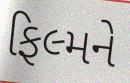
ફિલ્મને